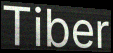
Tiber